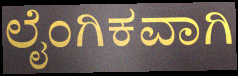
ಲೈಂಗಿಕವಾಗಿ